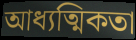
আধ্যত্মিকতা